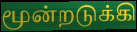
மூன்றடுக்கி